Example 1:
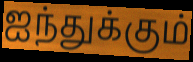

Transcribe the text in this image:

ஐந்துக்கும்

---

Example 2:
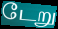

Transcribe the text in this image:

டேறு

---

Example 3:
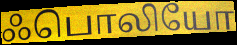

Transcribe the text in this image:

ஃபொலியோ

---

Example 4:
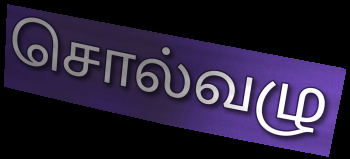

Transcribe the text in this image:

சொல்வழு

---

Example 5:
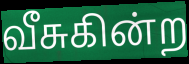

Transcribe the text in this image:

வீசுகின்ற